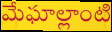
మేఘాల్లాంటి